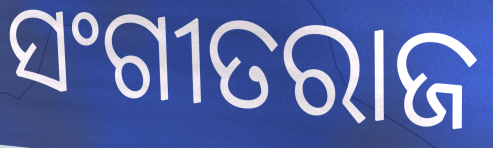
ସଂଗୀତରାଜ